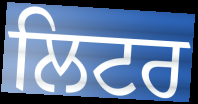
ਲਿਟਰ